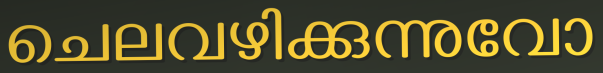
ചെലവഴിക്കുന്നുവോ